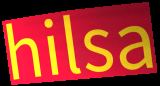
hilsa